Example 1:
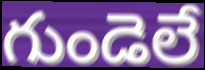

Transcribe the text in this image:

గుండెలే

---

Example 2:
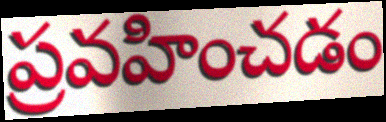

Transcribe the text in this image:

ప్రవహించడం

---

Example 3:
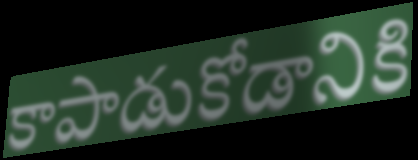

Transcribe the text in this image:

కాపాడుకోడానికి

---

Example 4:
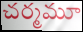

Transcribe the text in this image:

చర్మమూ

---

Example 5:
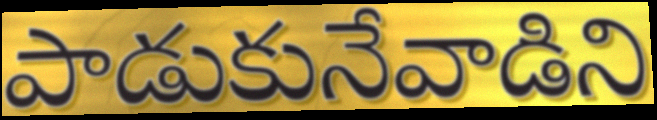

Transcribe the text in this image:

పాడుకునేవాడిని